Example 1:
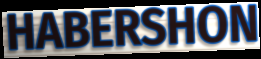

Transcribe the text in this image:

HABERSHON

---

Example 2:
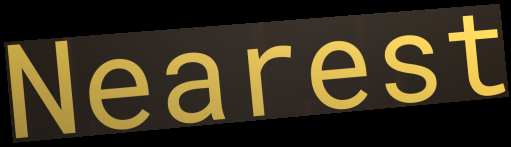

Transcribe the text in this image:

Nearest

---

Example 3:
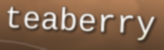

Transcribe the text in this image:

teaberry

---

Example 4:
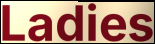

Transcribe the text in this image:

Ladies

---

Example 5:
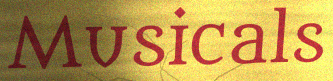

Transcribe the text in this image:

Musicals